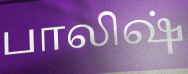
பாலிஷ்